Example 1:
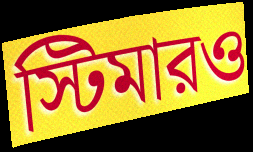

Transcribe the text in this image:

স্টিমারও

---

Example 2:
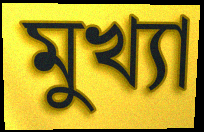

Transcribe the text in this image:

মুখ্যা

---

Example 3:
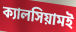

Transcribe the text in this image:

ক্যালসিয়ামই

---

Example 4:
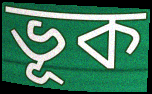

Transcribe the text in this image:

ভূক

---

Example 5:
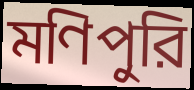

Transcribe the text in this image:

মণিপুরি